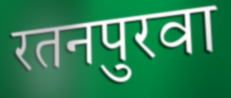
रतनपुरवा